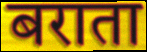
बराता